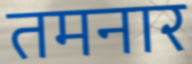
तमनार